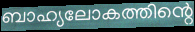
ബാഹ്യലോകത്തിന്റെ